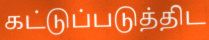
கட்டுப்படுத்திட